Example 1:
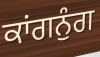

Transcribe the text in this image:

ਕਾਂਗਨੁੰਗ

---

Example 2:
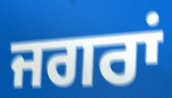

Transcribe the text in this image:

ਜਗਰਾਂ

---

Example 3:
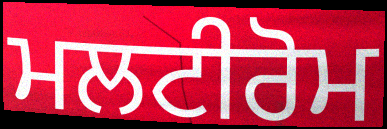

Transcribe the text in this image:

ਮਲਟੀਰੋਮ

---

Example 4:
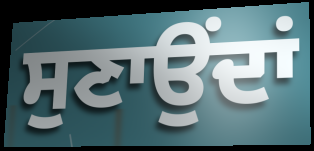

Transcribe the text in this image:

ਸੁਣਾਉਂਦਾਂ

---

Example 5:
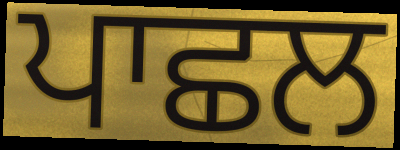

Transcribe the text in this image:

ਪਾਛਲ